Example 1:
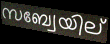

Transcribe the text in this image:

സബ്വേയില്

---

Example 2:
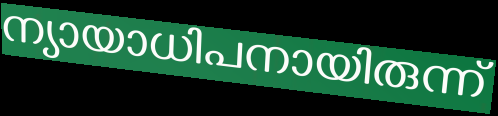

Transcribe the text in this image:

ന്യായാധിപനായിരുന്ന്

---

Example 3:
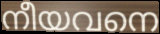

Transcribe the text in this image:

നീയവനെ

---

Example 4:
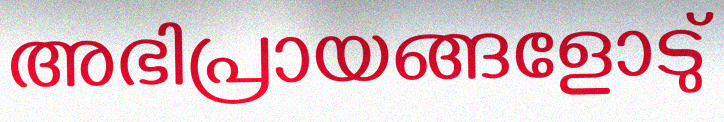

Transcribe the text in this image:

അഭിപ്രായങ്ങളോടു്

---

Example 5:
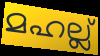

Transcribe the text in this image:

മഹല്ല്